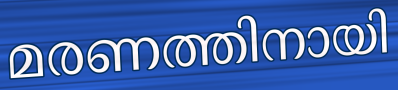
മരണത്തിനായി